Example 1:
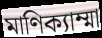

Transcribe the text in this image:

মাণিক্যাম্মা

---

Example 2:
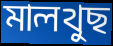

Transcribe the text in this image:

মালথুছ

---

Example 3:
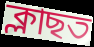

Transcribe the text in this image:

ক্লাছত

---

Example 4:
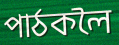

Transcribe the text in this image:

পাঠকলৈ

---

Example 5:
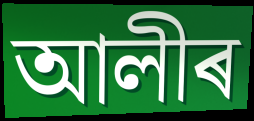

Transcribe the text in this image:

আলীৰ